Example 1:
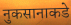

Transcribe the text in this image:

नुकसानाकडे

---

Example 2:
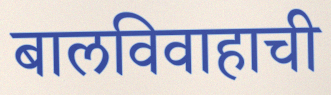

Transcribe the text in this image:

बालविवाहाची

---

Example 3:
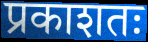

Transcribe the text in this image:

प्रकाशतः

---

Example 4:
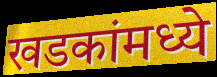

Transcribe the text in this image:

खडकांमध्ये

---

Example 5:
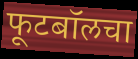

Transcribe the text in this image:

फूटबॉलचा